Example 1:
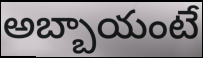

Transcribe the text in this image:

అబ్బాయంటే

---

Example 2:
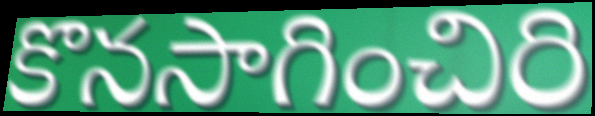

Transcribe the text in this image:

కొనసాగించిరి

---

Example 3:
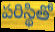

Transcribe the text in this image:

పరిస్థితో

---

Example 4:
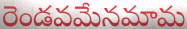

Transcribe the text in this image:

రెండవమేనమామ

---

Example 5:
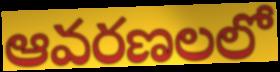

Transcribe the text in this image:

ఆవరణలలో